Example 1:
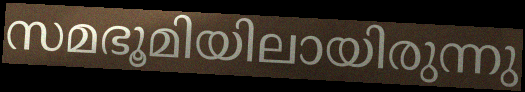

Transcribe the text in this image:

സമഭൂമിയിലായിരുന്നു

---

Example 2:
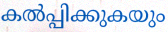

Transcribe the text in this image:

കൽപ്പിക്കുകയും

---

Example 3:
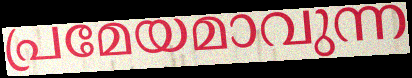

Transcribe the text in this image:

പ്രമേയമാവുന്ന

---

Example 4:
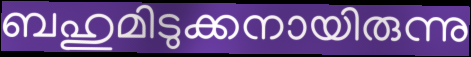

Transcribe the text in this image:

ബഹുമിടുക്കനായിരുന്നു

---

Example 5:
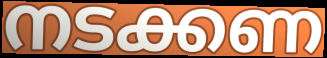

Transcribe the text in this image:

നടക്കണ